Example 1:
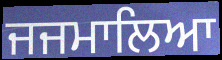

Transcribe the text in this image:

ਜਜਮਾਲਿਆ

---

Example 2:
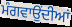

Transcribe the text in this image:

ਮੰਗਵਾਉਂਦੀਆਂ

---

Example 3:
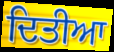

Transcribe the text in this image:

ਦਿਤੀਆ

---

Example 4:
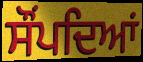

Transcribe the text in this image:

ਸੌਂਪਦਿਆਂ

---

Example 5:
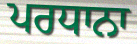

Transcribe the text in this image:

ਪਰਧਾਨਾ